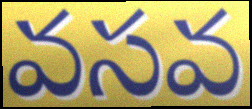
వసవ